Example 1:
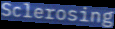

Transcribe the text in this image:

Sclerosing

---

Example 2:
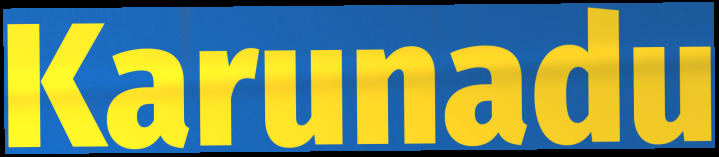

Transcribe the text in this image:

Karunadu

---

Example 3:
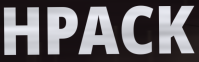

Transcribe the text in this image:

HPACK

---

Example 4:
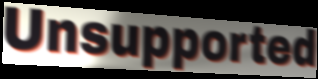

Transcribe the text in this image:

Unsupported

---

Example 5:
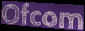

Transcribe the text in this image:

Ofcom